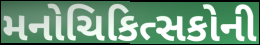
મનોચિકિત્સકોની